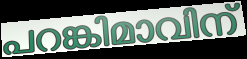
പറങ്കിമാവിന്